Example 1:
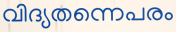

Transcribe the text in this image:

വിദ്യതന്നെപരം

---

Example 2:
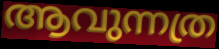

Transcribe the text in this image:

ആവുന്നത്ര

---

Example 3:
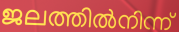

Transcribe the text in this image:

ജലത്തിൽനിന്ന്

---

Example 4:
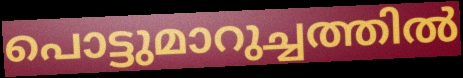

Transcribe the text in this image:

പൊട്ടുമാറുച്ചത്തിൽ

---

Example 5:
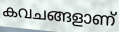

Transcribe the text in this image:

കവചങ്ങളാണ്